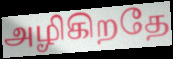
அழிகிறதே